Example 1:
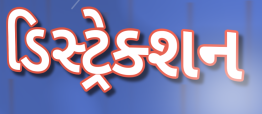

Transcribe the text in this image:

ડિસ્ટ્રેક્શન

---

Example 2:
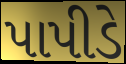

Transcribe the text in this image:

પાપીડે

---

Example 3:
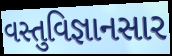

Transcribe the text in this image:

વસ્તુવિજ્ઞાનસાર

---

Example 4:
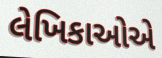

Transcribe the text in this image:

લેખિકાઓએ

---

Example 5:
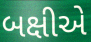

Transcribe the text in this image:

બક્ષીએ